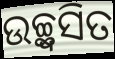
ଉଚ୍ଛ୍ୱସିତ